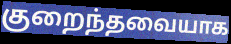
குறைந்தவையாக